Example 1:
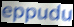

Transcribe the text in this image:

eppudu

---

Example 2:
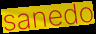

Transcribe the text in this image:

sanedo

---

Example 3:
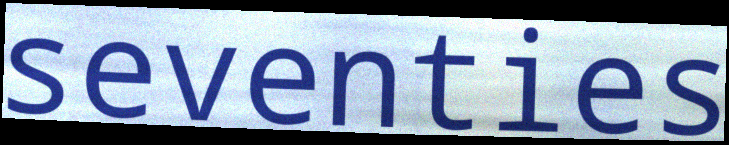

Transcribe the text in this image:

seventies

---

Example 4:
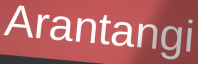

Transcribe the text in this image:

Arantangi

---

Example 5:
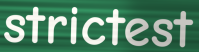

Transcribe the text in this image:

strictest